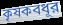
কৃষকবধূর